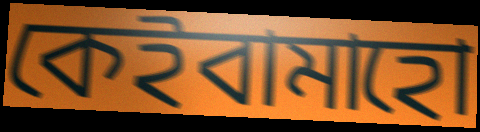
কেইবামাহো